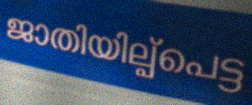
ജാതിയില്പ്പെട്ട